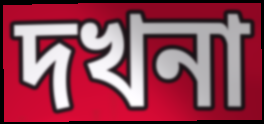
দখনা